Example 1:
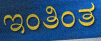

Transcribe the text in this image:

ಇಂತಿಂತ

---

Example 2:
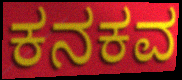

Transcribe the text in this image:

ಕನಕವ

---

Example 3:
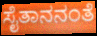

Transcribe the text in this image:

ಸೈತಾನನಂತೆ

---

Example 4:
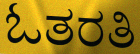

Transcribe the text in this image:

ಓತರತಿ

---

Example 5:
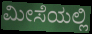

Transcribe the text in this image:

ಮೀಸೆಯಲ್ಲಿ